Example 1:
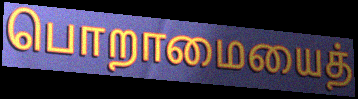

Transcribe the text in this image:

பொறாமையைத்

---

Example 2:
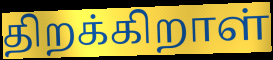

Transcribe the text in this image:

திறக்கிறாள்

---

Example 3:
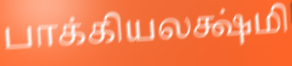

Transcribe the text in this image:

பாக்கியலக்ஷ்மி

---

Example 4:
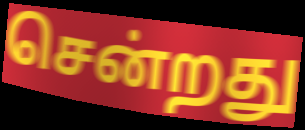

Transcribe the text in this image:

சென்றது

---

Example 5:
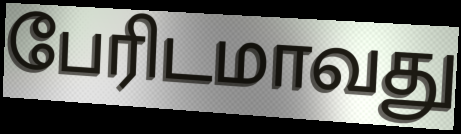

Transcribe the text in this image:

பேரிடமாவது